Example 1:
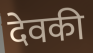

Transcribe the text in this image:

देवकी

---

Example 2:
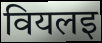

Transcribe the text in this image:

वियलइ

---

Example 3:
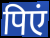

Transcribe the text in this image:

पिएं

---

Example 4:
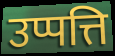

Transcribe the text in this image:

उप्पत्ति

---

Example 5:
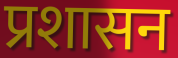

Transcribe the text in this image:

प्रशासन